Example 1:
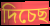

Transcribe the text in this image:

দিচেছ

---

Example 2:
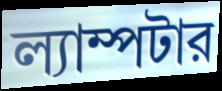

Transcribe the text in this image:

ল্যাম্পটার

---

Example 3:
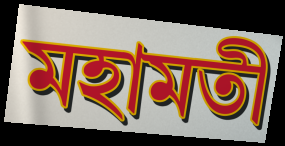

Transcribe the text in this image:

মহামতী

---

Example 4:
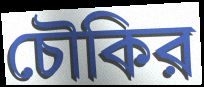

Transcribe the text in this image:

চৌকির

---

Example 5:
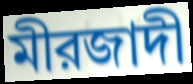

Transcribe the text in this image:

মীরজাদী